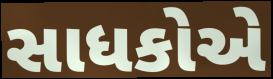
સાધકોએ